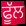
ਫੂੱਲ